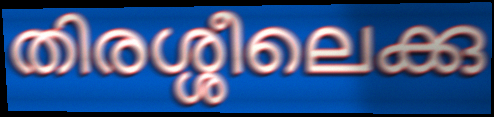
തിരശ്ശീലെക്കു